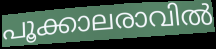
പൂക്കാലരാവിൽ